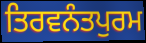
ਤਿਰਵਨੰਤਪੁਰਮ